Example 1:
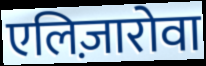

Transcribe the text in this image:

एलिज़ारोवा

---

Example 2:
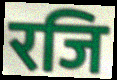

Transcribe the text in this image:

रजि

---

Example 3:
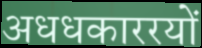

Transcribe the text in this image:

अधधकाररयों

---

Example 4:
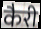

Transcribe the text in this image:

कैरी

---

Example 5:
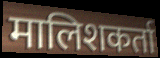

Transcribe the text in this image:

मालिशकर्ता